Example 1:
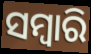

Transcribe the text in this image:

ସମ୍ବାରି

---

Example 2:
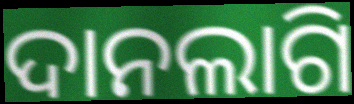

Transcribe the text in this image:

ଦାନଲାଗି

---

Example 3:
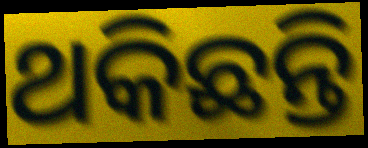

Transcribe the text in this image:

ଥକିଛନ୍ତି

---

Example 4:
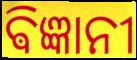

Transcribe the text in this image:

ଵିଜ୍ଞାନୀ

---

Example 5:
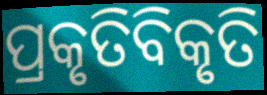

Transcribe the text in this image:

ପ୍ରକୃତିବିକୃତି